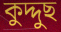
কুদ্দুছ